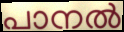
പാനൽ